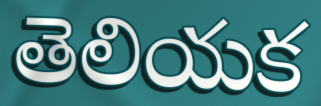
తెలియక